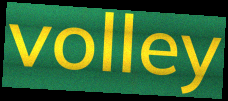
volley